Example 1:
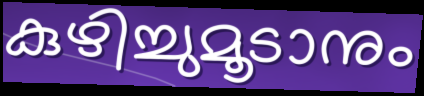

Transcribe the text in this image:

കുഴിച്ചുമൂടാനും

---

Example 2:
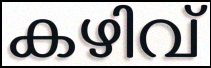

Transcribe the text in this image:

കഴിവ്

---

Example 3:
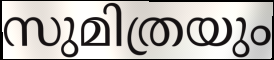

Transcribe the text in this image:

സുമിത്രയും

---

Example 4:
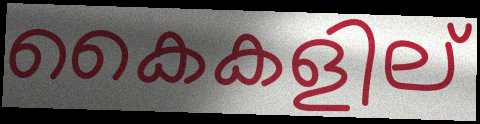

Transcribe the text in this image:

കൈകളില്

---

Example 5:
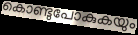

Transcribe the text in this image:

കൊണ്ടുപോകുകയും